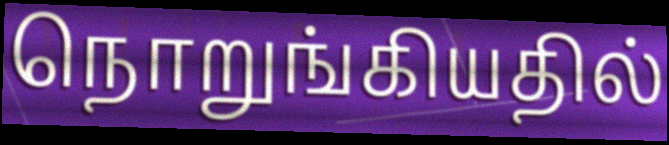
நொறுங்கியதில்